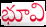
భూవి